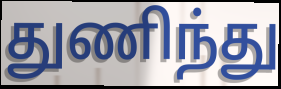
துணிந்து